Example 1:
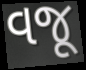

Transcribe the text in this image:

વજૂ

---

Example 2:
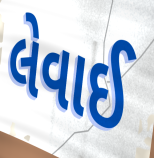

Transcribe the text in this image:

લેવાઈ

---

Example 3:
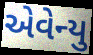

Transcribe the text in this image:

એવેન્યુ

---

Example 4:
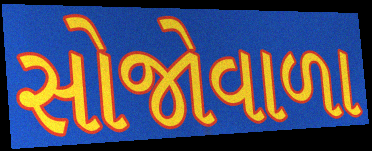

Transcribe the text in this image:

સોજોવાળા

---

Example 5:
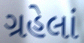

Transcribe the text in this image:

ગ્રહેલાં